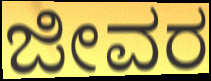
ಜೀವರ